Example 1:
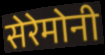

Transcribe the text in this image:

सेरेमोनी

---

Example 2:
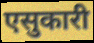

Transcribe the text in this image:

एसुकारी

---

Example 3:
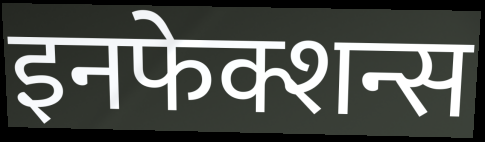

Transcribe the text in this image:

इनफेक्शन्स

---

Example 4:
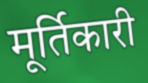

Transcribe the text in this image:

मूर्तिकारी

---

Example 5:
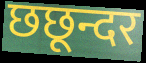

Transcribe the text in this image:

छछून्दर